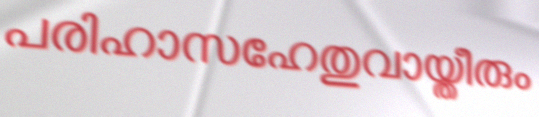
പരിഹാസഹേതുവായ്തീരും